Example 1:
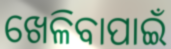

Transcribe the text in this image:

ଖେଳିବାପାଇଁ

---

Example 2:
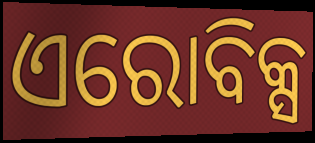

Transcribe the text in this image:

ଏରୋବିକ୍ସ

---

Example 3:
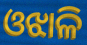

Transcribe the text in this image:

ଓଝାଳି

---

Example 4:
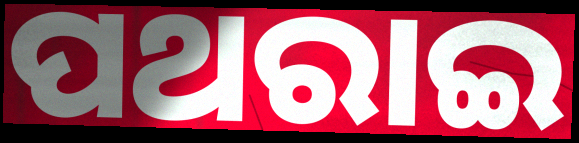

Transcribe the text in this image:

ପଥରାଇ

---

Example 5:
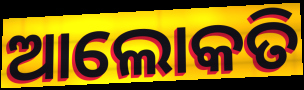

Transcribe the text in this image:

ଆଲୋକତି